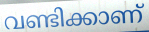
വണ്ടിക്കാണ്